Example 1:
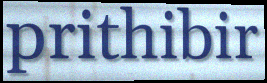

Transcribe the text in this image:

prithibir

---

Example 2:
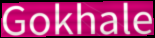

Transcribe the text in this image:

Gokhale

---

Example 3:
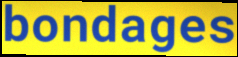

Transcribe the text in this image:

bondages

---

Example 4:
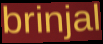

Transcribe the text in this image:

brinjal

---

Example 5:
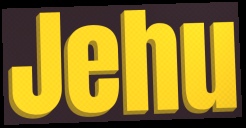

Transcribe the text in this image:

Jehu